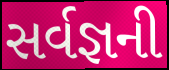
સર્વજ્ઞની